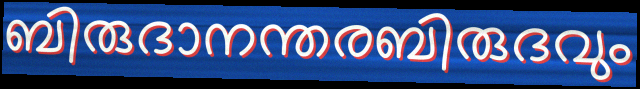
ബിരുദാനന്തരബിരുദവും